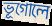
ভূগোলে